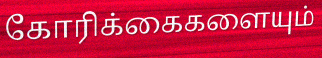
கோரிக்கைகளையும்